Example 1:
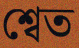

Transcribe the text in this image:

শ্বেত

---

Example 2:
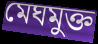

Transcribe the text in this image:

মেঘমুক্ত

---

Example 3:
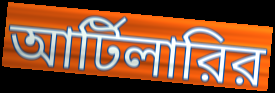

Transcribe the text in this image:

আর্টিলারির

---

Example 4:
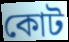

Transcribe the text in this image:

কোট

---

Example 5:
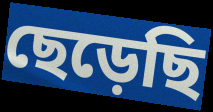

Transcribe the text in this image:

ছেড়েছি